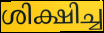
ശിക്ഷിച്ച